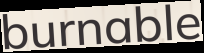
burnable